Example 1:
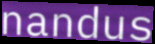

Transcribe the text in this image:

nandus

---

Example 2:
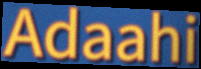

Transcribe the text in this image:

Adaahi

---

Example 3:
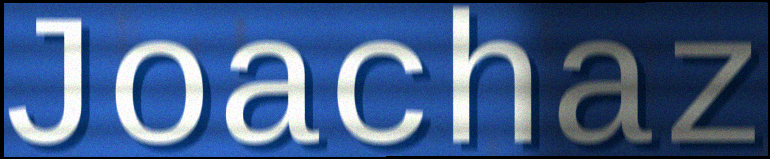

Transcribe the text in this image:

Joachaz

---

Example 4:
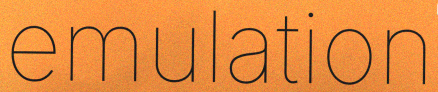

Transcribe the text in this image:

emulation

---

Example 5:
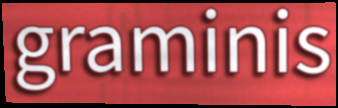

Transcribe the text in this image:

graminis